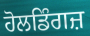
ਹੋਲਡਿੰਗਜ਼